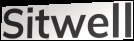
Sitwell